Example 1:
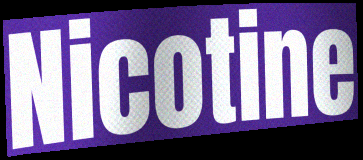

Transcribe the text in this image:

Nicotine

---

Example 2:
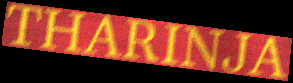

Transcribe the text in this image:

THARINJA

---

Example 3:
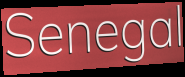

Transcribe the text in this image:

Senegal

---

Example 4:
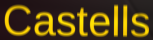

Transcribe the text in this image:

Castells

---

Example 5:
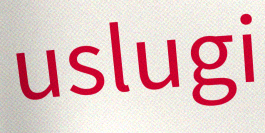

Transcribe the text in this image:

uslugi